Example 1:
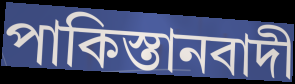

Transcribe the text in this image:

পাকিস্তানবাদী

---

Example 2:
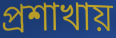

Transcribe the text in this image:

প্রশাখায়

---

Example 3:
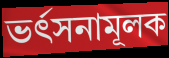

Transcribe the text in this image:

ভর্ৎসনামূলক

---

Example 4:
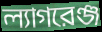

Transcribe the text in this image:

ল্যাগরেঞ্জ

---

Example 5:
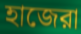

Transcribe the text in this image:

হাজেরা